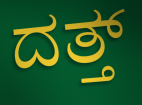
ದತ್ತ್